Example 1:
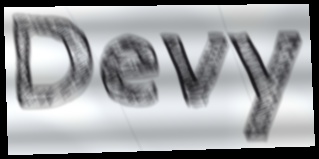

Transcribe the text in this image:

Devy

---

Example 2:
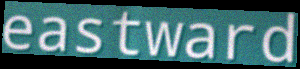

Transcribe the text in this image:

eastward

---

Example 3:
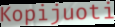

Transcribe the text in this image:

Kopijuoti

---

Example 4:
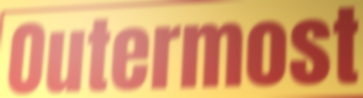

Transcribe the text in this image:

Outermost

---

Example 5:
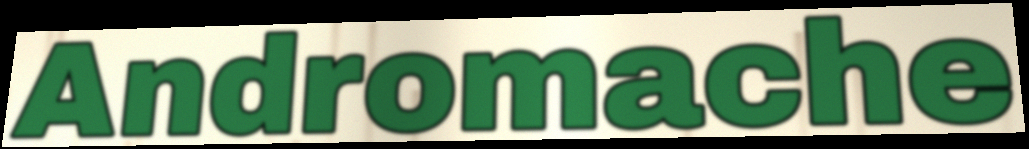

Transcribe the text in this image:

Andromache